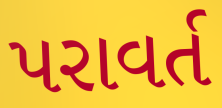
પરાવર્ત